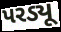
પરડ્યૂ